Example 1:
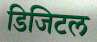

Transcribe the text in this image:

डिजिटल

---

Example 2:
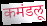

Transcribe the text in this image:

कमंडलू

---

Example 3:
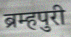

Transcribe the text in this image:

ब्रम्हपुरी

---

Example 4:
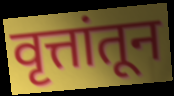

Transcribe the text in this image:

वृत्तांतून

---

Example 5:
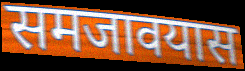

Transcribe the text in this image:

समजावयास